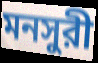
মনসুরী